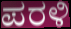
ಪರಳಿ